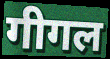
गीगल